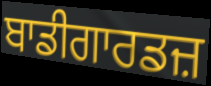
ਬਾਡੀਗਾਰਡਜ਼